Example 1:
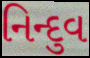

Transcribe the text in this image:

નિન્દુવ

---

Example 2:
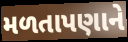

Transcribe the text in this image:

મળતાપણાને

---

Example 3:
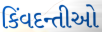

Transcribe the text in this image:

કિંવદન્તીઓ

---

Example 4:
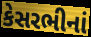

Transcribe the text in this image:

કેસરભીનાં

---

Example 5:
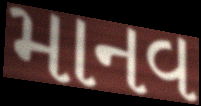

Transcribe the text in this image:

માનવ